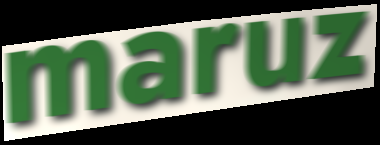
maruz